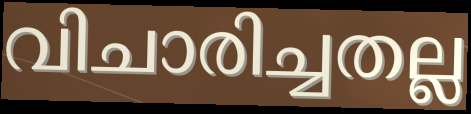
വിചാരിച്ചതല്ല